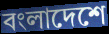
বংলাদেশে